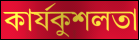
কাৰ্যকুশলতা